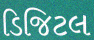
ડિજિટલ